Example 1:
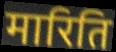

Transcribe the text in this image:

मारिति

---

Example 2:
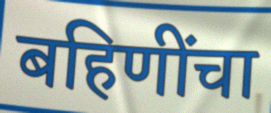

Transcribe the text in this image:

बहिणींचा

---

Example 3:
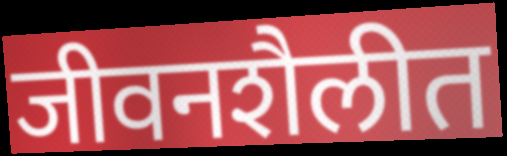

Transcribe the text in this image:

जीवनशैलीत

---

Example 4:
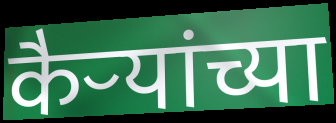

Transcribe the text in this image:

कैऱ्यांच्या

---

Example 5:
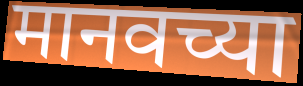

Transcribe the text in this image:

मानवच्या